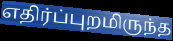
எதிர்ப்புறமிருந்த